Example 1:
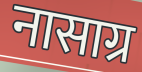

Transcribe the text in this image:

नासाग्र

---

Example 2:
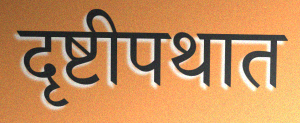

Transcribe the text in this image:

दृष्टीपथात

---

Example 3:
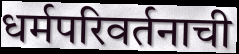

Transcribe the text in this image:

धर्मपरिवर्तनाची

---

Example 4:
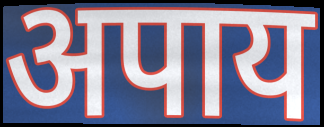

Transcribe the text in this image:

अपाय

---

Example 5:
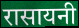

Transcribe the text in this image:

रासायनी